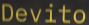
Devito